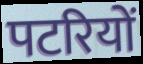
पटरियों